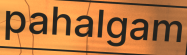
pahalgam